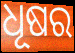
ଧୂଷର